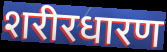
शरीरधारण